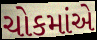
ચોકમાંએ